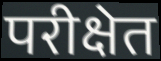
परीक्षेत